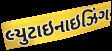
લ્યુટાઇનાઇઝિંગ